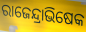
ରାଜେନ୍ଦ୍ରାଭିଷେକ